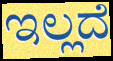
ಇಲ್ಲದೆ